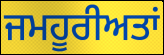
ਜਮਹੂਰੀਅਤਾਂ